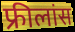
फ्रीलांस